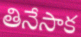
తినేసాక